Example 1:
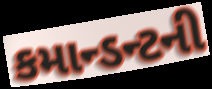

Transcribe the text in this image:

કમાન્ડન્ટની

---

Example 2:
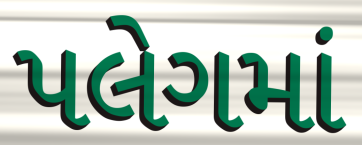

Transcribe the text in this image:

પલેગમાં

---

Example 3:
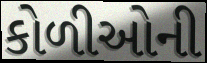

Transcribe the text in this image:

કોળીઓની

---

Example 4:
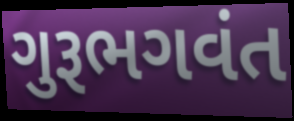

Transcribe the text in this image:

ગુરૂભગવંત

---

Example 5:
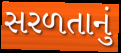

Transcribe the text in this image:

સરળતાનું